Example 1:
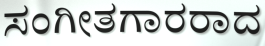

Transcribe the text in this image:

ಸಂಗೀತಗಾರರಾದ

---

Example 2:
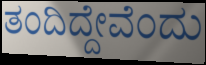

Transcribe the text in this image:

ತಂದಿದ್ದೇವೆಂದು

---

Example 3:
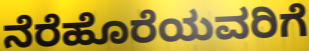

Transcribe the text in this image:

ನೆರೆಹೊರೆಯವರಿಗೆ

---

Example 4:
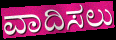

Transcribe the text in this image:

ವಾದಿಸಲು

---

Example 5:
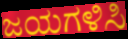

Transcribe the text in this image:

ಜಯಗಳಿಸಿ